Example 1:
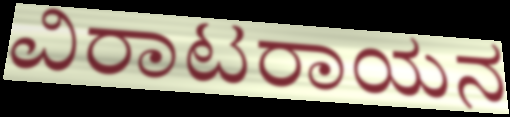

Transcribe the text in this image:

ವಿರಾಟರಾಯನ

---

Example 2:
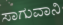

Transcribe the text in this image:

ಸಾಗುವಾನಿ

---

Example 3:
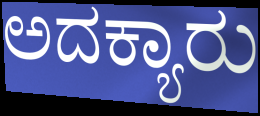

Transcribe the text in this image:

ಅದಕ್ಯಾರು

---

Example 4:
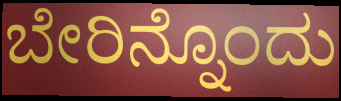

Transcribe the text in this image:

ಬೇರಿನ್ನೊಂದು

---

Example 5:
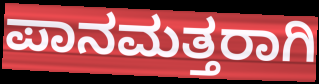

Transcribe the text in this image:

ಪಾನಮತ್ತರಾಗಿ